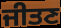
ਜੀਤਣ